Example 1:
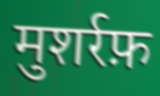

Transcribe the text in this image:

मुशर्रफ़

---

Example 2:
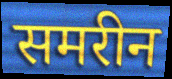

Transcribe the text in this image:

समरीन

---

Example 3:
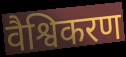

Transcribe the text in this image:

वैश्विकरण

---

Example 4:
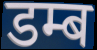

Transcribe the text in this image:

डम्ब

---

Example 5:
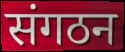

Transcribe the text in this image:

संगठन